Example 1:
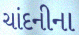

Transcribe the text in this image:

ચાંદનીના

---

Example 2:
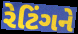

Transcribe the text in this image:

રેટિંગને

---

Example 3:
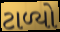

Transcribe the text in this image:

ટાળ્યો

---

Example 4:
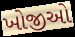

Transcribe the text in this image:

ખોજીઓ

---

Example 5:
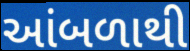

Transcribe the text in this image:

આંબળાથી